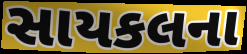
સાયકલના